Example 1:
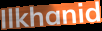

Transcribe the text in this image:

Ilkhanid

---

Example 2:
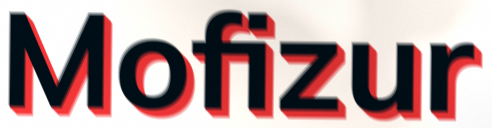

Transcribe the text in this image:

Mofizur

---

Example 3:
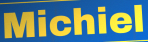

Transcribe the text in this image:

Michiel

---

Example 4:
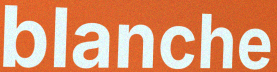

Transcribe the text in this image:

blanche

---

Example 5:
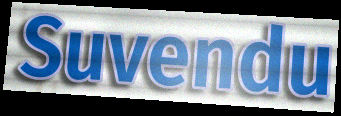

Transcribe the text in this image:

Suvendu